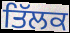
ਤਿੱਲਕ